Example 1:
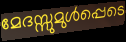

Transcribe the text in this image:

മേദസ്സുമുൾപ്പെടെ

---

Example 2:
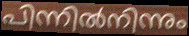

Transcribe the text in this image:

പിന്നിൽനിന്നും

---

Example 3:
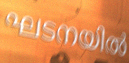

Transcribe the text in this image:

ഘടനയിൽ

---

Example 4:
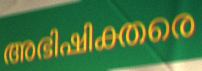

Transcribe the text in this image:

അഭിഷിക്തരെ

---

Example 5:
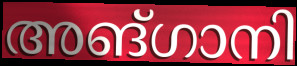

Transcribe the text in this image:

അങ്ഗാനി